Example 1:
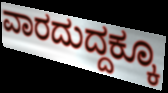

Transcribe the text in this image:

ವಾರದುದ್ದಕ್ಕೂ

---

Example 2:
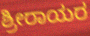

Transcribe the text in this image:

ಶ್ರೀರಾಯರ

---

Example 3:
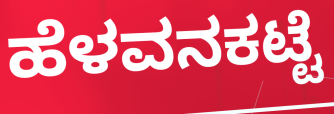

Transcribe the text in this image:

ಹೆಳವನಕಟ್ಟೆ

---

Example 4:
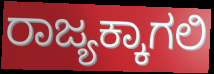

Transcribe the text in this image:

ರಾಜ್ಯಕ್ಕಾಗಲಿ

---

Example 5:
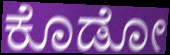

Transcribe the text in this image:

ಕೊಡೋ